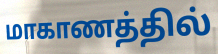
மாகாணத்தில்